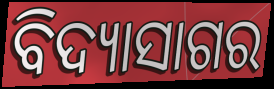
ବିଦ୍ୟାସାଗର